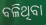
ବଳିଥିବା